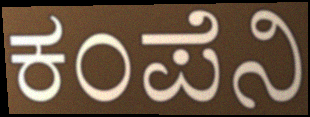
ಕಂಪೆನಿ